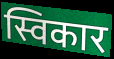
स्विकार